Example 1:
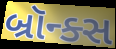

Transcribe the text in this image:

બ્રૉન્ક્સ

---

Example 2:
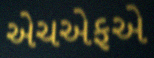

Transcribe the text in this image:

એચએફએ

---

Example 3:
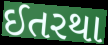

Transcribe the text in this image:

ઈતરથા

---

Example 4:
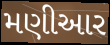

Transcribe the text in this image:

મણીઆર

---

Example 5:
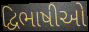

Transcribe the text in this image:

દ્વિભાષીઓ